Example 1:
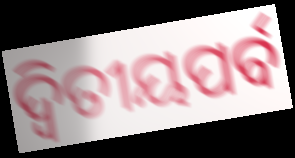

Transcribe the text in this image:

ଦ୍ୱିତୀୟପର୍ବ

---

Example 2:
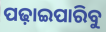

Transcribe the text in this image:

ପଢ଼ାଇପାରିବୁ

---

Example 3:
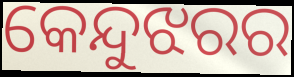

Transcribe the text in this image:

କେନ୍ଦୁଝରର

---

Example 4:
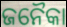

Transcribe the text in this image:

ଜନୈକା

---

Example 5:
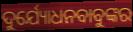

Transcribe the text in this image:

ଦୁର୍ଯ୍ୟୋଧନବାବୁଙ୍କର